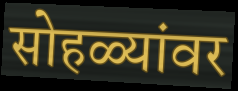
सोहळ्यांवर